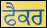
ਫੈਕਰ